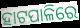
ହାଟପାଳିରେ